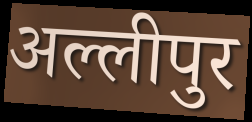
अल्लीपुर